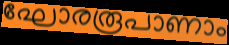
ഘോരരൂപാണാം